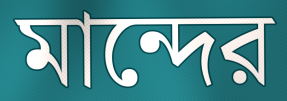
মান্দের